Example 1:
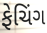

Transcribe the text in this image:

ફેચિંગ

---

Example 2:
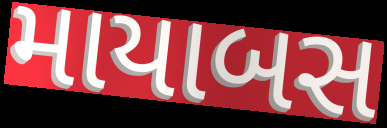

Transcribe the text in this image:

માયાબસ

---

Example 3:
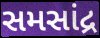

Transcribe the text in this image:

સમસાંદ્ર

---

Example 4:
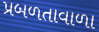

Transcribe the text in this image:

પ્રબળતાવાળા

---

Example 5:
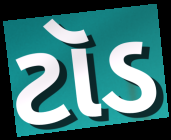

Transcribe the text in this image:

ટૉડ